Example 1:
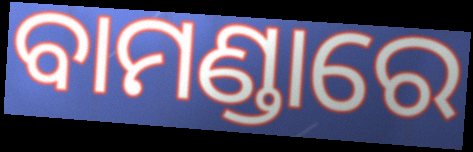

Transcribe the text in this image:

ବାମଣ୍ଡାରେ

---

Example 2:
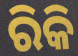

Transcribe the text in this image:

ରିକି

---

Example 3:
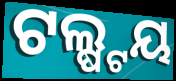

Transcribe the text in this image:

ଟଲ୍ଷ୍ଟୟ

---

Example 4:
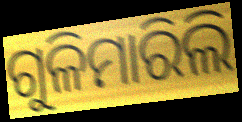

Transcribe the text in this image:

ଗୁଳିମାରିଲି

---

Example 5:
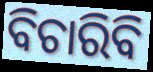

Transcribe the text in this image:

ବିଚାରିବି